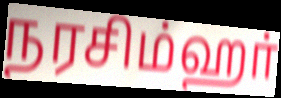
நரசிம்ஹர்